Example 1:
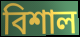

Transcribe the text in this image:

বিশাল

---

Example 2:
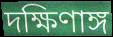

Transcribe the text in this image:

দক্ষিণাঙ্গ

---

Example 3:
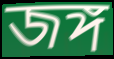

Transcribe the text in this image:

জঙ্গ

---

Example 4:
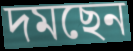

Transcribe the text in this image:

দমছেন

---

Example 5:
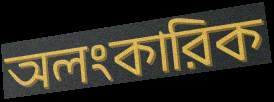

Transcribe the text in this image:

অলংকারিক